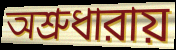
অশ্রুধারায়